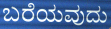
ಬರೆಯವುದು